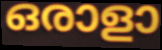
ഒരാളാ